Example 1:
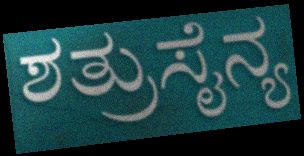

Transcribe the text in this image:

ಶತ್ರುಸೈನ್ಯ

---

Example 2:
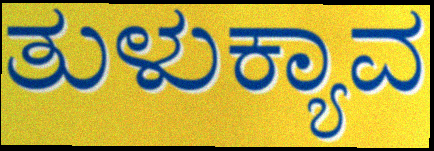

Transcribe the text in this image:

ತುಳುಕ್ಯಾವ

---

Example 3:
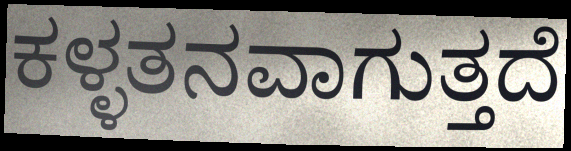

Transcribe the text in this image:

ಕಳ್ಳತನವಾಗುತ್ತದೆ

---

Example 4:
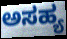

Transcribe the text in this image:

ಅಸಹ್ಯ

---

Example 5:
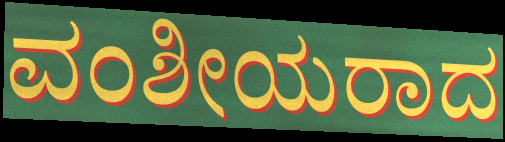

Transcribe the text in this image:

ವಂಶೀಯರಾದ